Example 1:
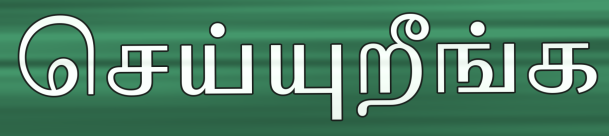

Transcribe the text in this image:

செய்யுறீங்க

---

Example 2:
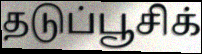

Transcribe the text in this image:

தடுப்பூசிக்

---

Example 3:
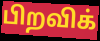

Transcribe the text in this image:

பிறவிக்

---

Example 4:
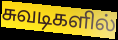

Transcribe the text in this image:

சுவடிகளில்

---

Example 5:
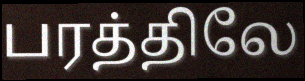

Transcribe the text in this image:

பரத்திலே